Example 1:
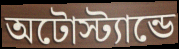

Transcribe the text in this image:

অটোস্ট্যান্ডে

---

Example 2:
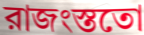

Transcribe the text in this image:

রাজংস্ততো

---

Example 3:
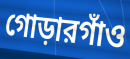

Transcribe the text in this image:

গোড়ারগাঁও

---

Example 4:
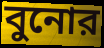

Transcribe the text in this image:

বুনোর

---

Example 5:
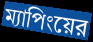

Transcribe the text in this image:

ম্যাপিংয়ের